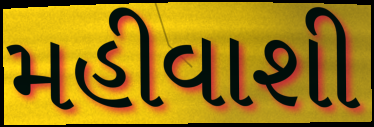
મહીવાશી